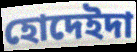
হোদেইদা